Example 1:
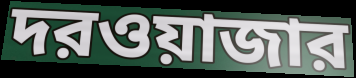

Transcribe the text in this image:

দরওয়াজার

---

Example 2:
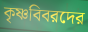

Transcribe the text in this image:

কৃষ্ণবিবরদের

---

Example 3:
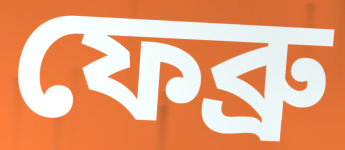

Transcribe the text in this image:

ফেব্রু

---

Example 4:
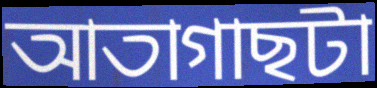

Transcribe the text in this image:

আতাগাছটা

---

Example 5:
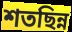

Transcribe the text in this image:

শতছিন্ন